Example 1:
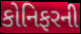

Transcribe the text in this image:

કોનિફરની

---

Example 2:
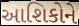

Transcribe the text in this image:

આશિકોને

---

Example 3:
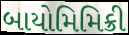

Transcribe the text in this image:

બાયોમિમિક્રી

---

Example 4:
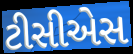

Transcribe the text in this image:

ટીસીએસ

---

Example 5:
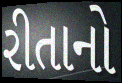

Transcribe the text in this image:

રીતાનો